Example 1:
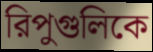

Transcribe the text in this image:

রিপুগুলিকে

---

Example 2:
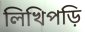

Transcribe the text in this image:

লিখিপড়ি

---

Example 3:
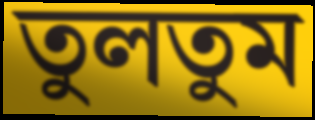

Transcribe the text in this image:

তুলতুম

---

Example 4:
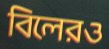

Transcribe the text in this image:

বিলেরও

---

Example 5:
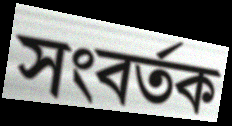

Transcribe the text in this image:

সংবর্তক